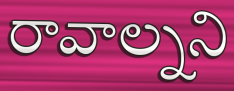
రావాల్నని